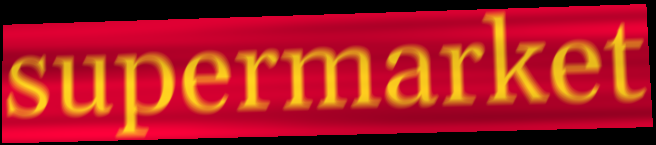
supermarket